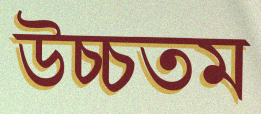
উচ্চতম